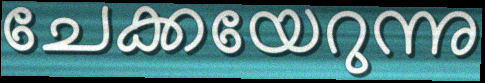
ചേക്കയേറുന്നു